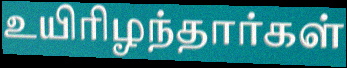
உயிரிழந்தார்கள்